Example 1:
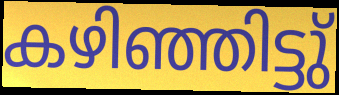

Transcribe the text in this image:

കഴിഞ്ഞിട്ടു്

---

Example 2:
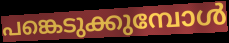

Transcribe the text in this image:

പങ്കെടുക്കുമ്പോൾ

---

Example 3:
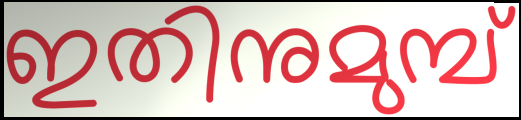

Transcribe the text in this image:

ഇതിനുമുമ്പ്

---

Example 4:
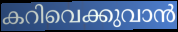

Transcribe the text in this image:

കറിവെക്കുവാൻ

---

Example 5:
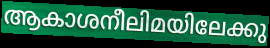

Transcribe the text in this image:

ആകാശനീലിമയിലേക്കു